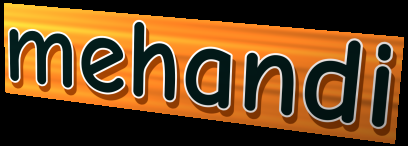
mehandi